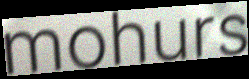
mohurs